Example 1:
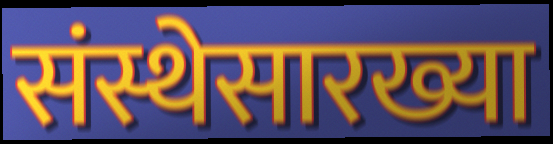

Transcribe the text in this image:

संस्थेसारख्या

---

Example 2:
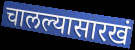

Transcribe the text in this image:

चालल्यासारखं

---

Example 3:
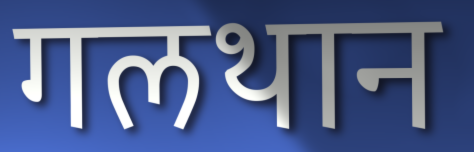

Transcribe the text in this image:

गलथान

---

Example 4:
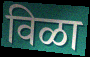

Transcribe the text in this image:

विळा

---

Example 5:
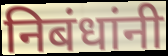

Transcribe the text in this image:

निबंधांनी